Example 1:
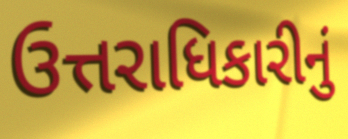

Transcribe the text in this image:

ઉત્તરાધિકારીનું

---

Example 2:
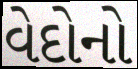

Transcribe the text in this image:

વેદોનો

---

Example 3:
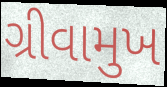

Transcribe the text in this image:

ગ્રીવામુખ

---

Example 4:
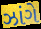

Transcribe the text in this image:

ઝાંગે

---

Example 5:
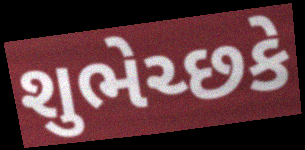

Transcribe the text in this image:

શુભેચ્છકે